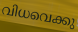
വിധവെക്കു